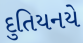
દુતિયનયે